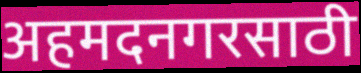
अहमदनगरसाठी